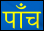
पॉंच